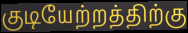
குடியேற்றத்திற்கு